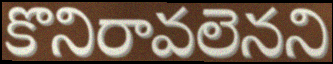
కొనిరావలెనని